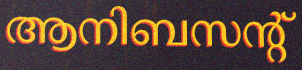
ആനിബസന്റ്